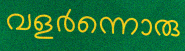
വളർന്നൊരു